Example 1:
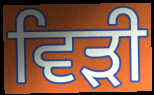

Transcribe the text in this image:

ਵਿੜੀ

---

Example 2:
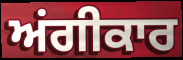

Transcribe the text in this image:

ਅਂਗੀਕਾਰ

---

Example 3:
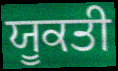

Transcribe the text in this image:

ਯੂਕਤੀ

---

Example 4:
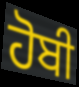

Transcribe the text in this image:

ਹੋਬੀ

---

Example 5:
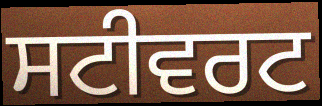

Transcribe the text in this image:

ਸਟੀਵਰਟ